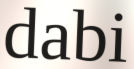
dabi